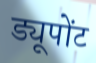
ड्यूपोंट